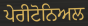
ਪੇਰੀਟੋਨਿਅਲ